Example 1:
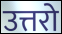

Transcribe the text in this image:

उत्तरो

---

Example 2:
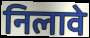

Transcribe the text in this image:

निलावे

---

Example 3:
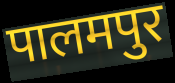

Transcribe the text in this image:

पालमपुर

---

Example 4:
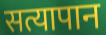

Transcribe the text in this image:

सत्यापान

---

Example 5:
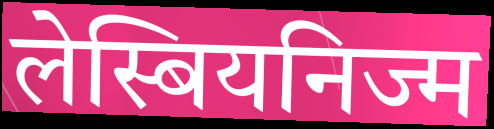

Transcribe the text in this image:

लेस्बियनिज्म